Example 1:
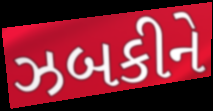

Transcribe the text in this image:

ઝબકીને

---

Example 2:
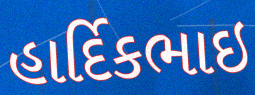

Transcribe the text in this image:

હાર્દિકભાઇ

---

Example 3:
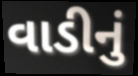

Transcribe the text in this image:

વાડીનું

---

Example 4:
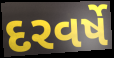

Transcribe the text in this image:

દરવર્ષે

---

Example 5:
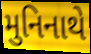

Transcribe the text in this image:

મુનિનાથે